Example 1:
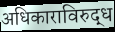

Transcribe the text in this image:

अधिकाराविरुद्ध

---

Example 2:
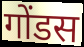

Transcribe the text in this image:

गोंडस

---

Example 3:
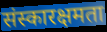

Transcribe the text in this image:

संस्कारक्षमता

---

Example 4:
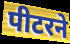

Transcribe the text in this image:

पीटरने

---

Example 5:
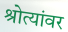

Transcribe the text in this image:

श्रोत्यांवर